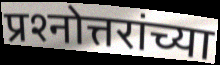
प्रश्नोत्तरांच्या